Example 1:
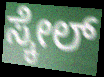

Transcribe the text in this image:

ಸ್ಕೇಲ್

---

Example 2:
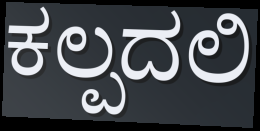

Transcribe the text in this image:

ಕಲ್ಪದಲಿ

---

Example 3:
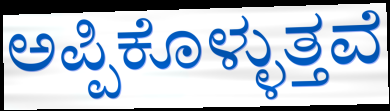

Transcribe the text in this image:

ಅಪ್ಪಿಕೊಳ್ಳುತ್ತವೆ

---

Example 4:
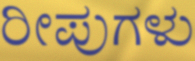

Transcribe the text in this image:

ರೀಪುಗಳು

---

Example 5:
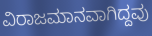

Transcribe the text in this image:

ವಿರಾಜಮಾನವಾಗಿದ್ದವು